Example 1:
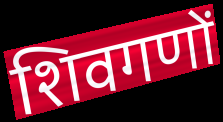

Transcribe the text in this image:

शिवगणों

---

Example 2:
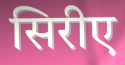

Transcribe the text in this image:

सिरीए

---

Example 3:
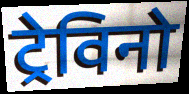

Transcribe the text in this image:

ट्रेविनो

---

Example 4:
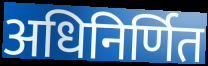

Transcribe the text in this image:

अधिनिर्णित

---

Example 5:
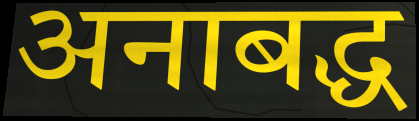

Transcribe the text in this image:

अनाबद्ध